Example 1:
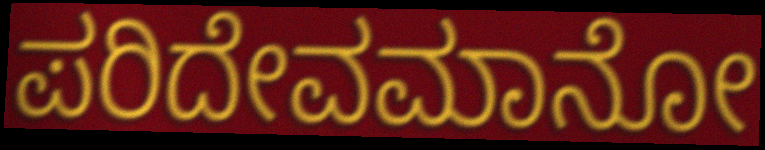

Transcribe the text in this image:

ಪರಿದೇವಮಾನೋ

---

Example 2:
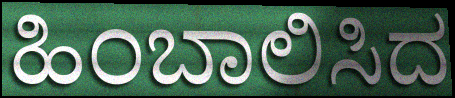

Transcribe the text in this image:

ಹಿಂಬಾಲಿಸಿದ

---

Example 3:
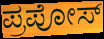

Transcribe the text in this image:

ಪ್ರಪೋಸ್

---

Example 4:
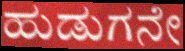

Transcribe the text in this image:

ಹುಡುಗನೇ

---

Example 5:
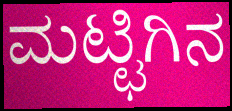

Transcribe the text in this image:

ಮಟ್ಟಿಗಿನ